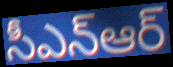
సీఎన్ఆర్